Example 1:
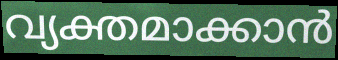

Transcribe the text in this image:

വ്യക്തമാക്കാൻ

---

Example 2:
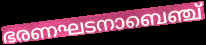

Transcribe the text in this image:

ഭരണഘടനാബെഞ്ച്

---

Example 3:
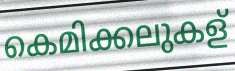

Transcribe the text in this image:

കെമിക്കലുകള്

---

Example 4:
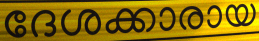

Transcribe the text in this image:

ദേശക്കാരായ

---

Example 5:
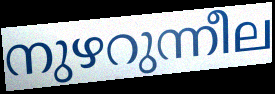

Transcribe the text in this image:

നുഴറുന്നീല